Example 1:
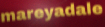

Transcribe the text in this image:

mareyadale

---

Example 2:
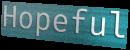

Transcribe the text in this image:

Hopeful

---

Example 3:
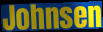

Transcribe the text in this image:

Johnsen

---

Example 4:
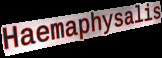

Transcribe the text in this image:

Haemaphysalis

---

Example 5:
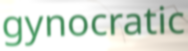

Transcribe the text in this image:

gynocratic